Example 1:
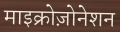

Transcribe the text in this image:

माइक्रोज़ोनेशन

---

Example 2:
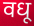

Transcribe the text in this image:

वधू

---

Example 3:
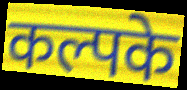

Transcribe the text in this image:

कल्पके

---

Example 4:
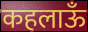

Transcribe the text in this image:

कहलाऊँ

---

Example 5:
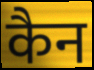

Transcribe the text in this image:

कैन